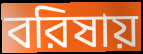
বরিষায়